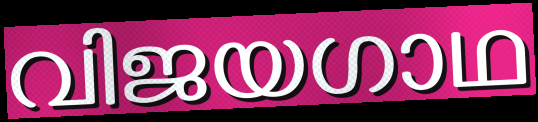
വിജയഗാഥ